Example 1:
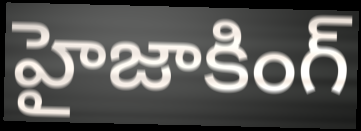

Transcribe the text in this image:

హైజాకింగ్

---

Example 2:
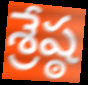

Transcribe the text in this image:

శ్రేష్ఠ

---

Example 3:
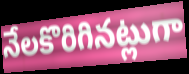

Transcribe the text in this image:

నేలకొరిగినట్లుగా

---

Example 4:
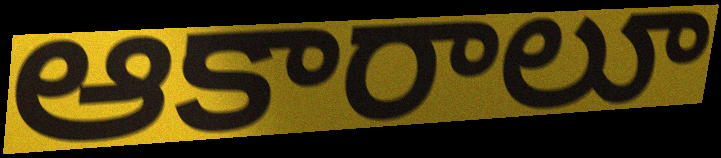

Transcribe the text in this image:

ఆకారాలూ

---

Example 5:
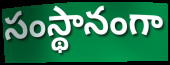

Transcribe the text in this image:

సంస్థానంగా